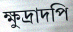
ক্ষুদ্রাদপি